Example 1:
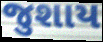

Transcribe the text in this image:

જુશાય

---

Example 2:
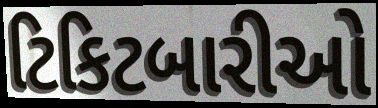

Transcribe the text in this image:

ટિકિટબારીઓ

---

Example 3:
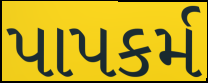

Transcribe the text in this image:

પાપકર્મ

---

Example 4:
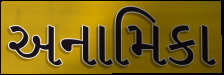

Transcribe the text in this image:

અનામિકા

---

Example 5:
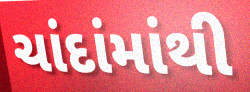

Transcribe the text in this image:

ચાંદાંમાંથી